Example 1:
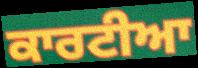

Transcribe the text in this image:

ਕਾਰਟੀਆ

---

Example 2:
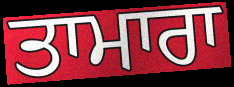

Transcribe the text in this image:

ਤਾਮਾਰਾ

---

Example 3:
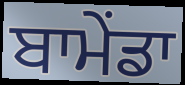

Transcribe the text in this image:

ਬਾਮੇਂਡਾ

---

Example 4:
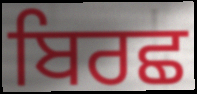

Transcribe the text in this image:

ਬਿਰਛ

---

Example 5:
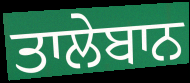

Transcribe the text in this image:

ਤਾਲੇਬਾਨ